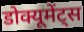
डोक्यूमेंट्स